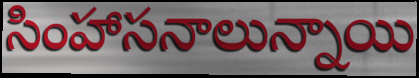
సింహాసనాలున్నాయి